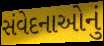
સંવેદનાઓનું